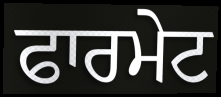
ਫਾਰਮੇਟ